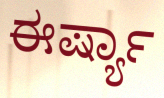
ಈರ್ಷ್ಯಾ